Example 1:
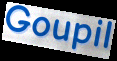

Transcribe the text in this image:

Goupil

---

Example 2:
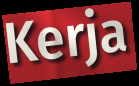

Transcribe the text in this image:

Kerja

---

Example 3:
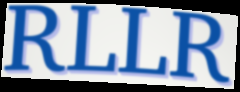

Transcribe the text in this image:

RLLR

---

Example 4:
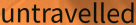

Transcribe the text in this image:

untravelled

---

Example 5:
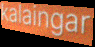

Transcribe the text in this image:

kalaingar